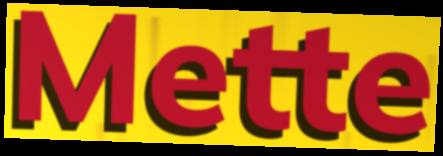
Mette